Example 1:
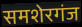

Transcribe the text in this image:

समशेरगंज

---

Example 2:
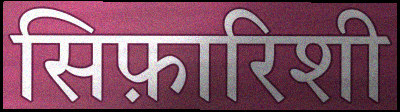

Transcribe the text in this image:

सिफ़ारिशी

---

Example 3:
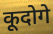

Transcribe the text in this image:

कूदोगे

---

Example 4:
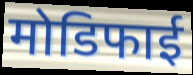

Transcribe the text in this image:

मोडिफाई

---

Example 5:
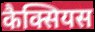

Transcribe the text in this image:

कैक्सियस